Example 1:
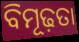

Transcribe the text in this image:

ବିମୂଢ଼ତା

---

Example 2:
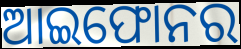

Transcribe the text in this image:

ଆଇଫୋନର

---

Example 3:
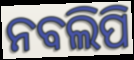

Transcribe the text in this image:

ନବଲିପି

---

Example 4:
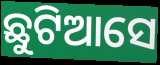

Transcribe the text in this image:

ଛୁଟିଆସେ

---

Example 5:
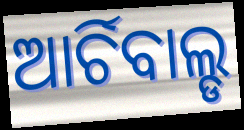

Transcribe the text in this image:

ଆର୍ଚିବାଲ୍ଡ